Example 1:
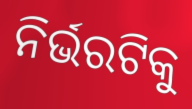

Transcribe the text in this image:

ନିର୍ଭରଟିକୁ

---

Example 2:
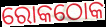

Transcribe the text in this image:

ରୋକଠୋକ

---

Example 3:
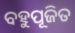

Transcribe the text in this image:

ବହୁପୂଜିତ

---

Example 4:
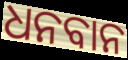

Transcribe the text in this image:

ଧନବାନ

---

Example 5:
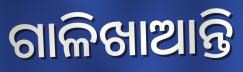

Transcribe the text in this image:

ଗାଳିଖାଆନ୍ତି